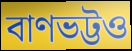
বাণভট্টও